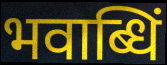
भवाब्धिं